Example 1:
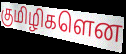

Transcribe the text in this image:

குமிழிகளென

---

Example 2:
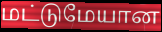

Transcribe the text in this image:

மட்டுமேயான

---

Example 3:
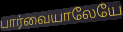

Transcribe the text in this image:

பார்வையாலேயே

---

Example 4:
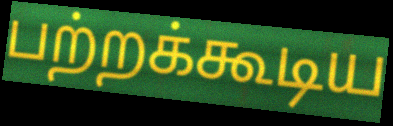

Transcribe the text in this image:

பற்றக்கூடிய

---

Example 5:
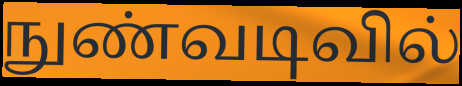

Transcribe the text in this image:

நுண்வடிவில்